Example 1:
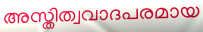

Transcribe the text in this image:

അസ്തിത്വവാദപരമായ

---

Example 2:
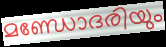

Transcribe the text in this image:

മണ്ഡോദരിയും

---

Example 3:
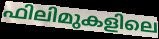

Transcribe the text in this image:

ഫിലിമുകളിലെ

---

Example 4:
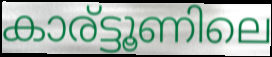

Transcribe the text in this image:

കാര്ട്ടൂണിലെ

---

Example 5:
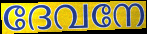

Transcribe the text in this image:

ദേവനേ